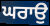
ਘਰਾਉ